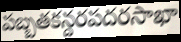
పబ్బతకన్దరపదరసాఖా